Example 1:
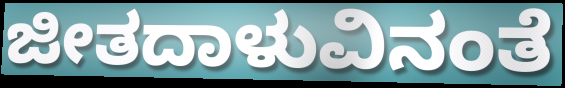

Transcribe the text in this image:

ಜೀತದಾಳುವಿನಂತೆ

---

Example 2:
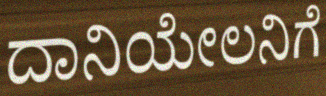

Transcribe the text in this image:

ದಾನಿಯೇಲನಿಗೆ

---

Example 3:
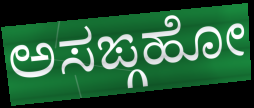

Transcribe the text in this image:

ಅಸಙ್ಗಹೋ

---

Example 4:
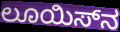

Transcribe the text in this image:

ಲೂಯಿಸ್‌ನ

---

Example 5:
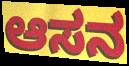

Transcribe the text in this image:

ಆಸನ